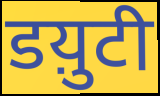
डय़ुटी